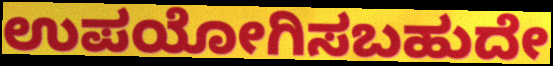
ಉಪಯೋಗಿಸಬಹುದೇ